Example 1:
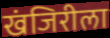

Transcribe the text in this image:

खंजिरीला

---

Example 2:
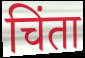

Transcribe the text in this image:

चिंता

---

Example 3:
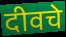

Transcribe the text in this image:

दीवचे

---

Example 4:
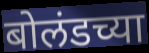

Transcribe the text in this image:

बोलंडच्या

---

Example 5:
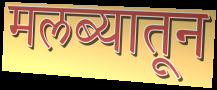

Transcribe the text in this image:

मलब्यातून